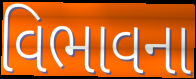
વિભાવના